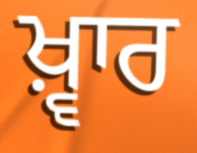
ਖ਼੍ਵਾਰ